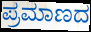
ಪ್ರಮಾಣದ